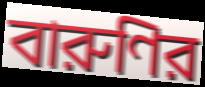
বারুণির